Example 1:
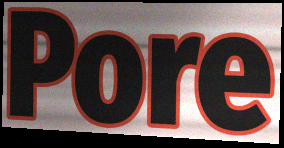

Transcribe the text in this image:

Pore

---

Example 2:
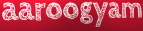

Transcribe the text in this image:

aaroogyam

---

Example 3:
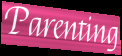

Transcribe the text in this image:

Parenting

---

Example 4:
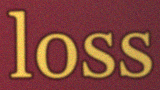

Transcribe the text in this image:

loss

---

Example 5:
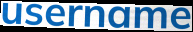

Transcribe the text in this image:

username